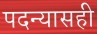
पदन्यासही